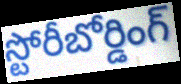
స్టోరీబోర్డింగ్